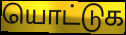
யொட்டுக